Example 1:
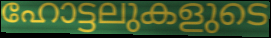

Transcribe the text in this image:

ഹോട്ടലുകളുടെ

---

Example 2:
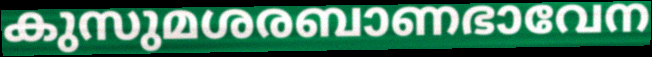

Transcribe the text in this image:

കുസുമശരബാണഭാവേന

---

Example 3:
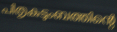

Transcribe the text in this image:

പിതൃകുടുംബത്തിന്റെ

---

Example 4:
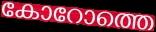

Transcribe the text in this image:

കോറോത്തെ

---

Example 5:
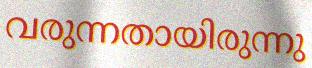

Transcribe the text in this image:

വരുന്നതായിരുന്നു